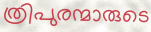
ത്രിപുരന്മാരുടെ